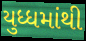
યુધ્ધમાંથી